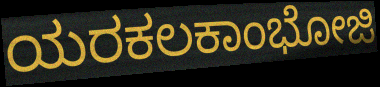
ಯರಕಲಕಾಂಭೋಜಿ